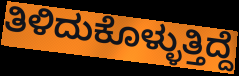
ತಿಳಿದುಕೊಳ್ಳುತ್ತಿದ್ದೆ